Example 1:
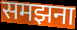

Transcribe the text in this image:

समझना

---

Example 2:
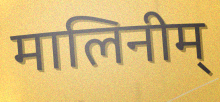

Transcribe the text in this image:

मालिनीम्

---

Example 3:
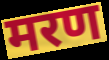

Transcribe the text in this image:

मरण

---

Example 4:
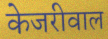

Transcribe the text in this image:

केजरीवाल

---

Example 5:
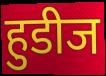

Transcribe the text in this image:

हुडीज